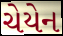
ચેયેન